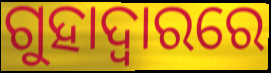
ଗୁହାଦ୍ଵାରରେ